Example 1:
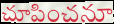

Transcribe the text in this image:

చూపించనూ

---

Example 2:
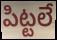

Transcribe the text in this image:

పిట్టలే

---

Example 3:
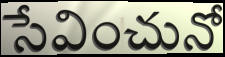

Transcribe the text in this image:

సేవించునో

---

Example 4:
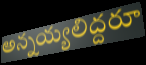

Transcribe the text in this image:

అన్నయ్యలిద్దరూ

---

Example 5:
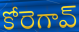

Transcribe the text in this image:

కోరెగావ్